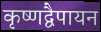
कृष्णद्वैपायन